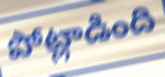
పోట్లాడింది